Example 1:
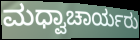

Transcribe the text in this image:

ಮಧ್ವಾಚಾರ್ಯರು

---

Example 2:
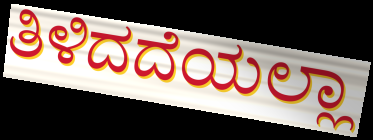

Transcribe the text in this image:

ತಿಳಿದದೆಯಲ್ಲಾ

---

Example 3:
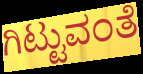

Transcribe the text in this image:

ಗಿಟ್ಟುವಂತೆ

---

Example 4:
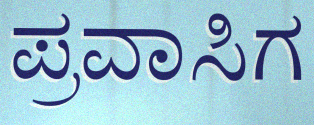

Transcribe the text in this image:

ಪ್ರವಾಸಿಗ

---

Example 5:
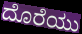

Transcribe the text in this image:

ದೊರೆಯು